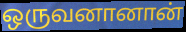
ஒருவனானான்